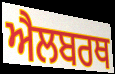
ਐਲਬਰਥ